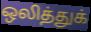
ஒலித்துக்